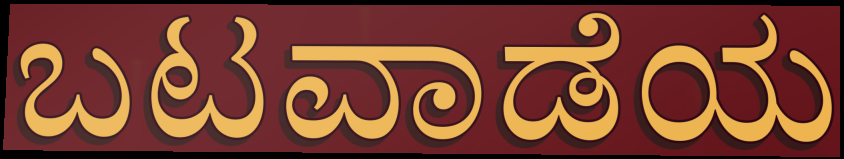
ಬಟವಾಡೆಯ